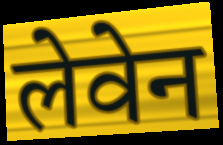
लेवेन